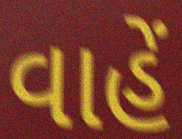
વાહેં